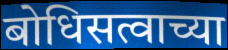
बोधिसत्वाच्या